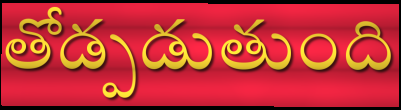
తోడ్పడుతుంది